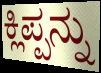
ಕ್ಲಿಪ್ಪನ್ನು